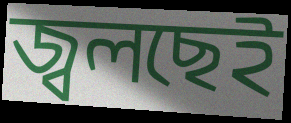
জ্বলছেই